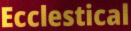
Ecclestical